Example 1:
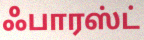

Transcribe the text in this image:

ஃபாரஸ்ட்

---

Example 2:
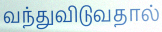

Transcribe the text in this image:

வந்துவிடுவதால்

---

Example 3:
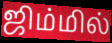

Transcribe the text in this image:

ஜிம்மில்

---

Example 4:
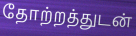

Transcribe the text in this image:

தோற்றத்துடன்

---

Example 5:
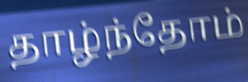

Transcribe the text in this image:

தாழ்ந்தோம்